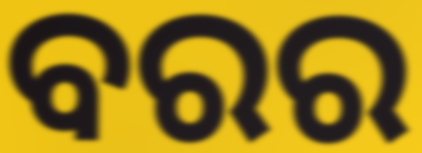
ବରର